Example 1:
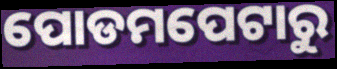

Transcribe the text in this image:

ପୋଡମପେଟାରୁ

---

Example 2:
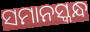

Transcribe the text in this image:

ସମାନସ୍କନ୍ଧ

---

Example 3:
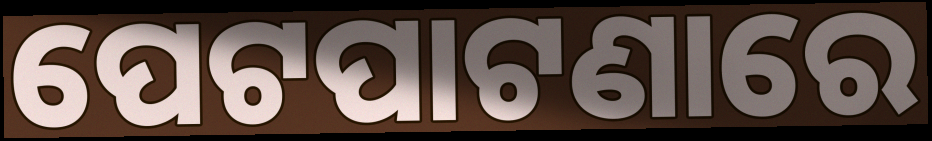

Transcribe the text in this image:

ପେଟପାଟଣାରେ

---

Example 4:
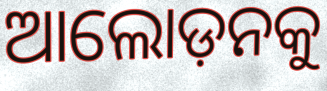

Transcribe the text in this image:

ଆଲୋଡ଼ନକୁ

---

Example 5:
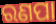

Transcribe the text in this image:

ରଣପା